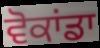
ਵੋਕਾਂਡਾ